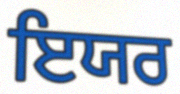
ਇਯਰ